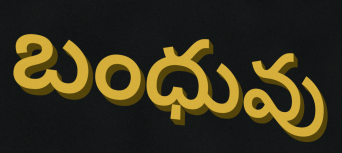
బంధువు